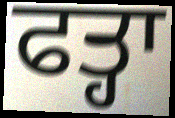
ਫਤ੍ਹਾ